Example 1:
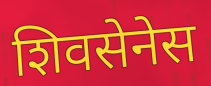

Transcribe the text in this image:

शिवसेनेस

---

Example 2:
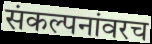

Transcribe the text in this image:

संकल्पनांवरच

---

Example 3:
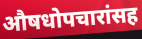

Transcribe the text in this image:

औषधोपचारांसह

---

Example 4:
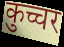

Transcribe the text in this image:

कुच्चर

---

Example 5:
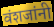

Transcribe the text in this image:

वंशजांनी